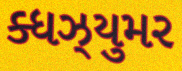
ક્ધઝ્યુમર